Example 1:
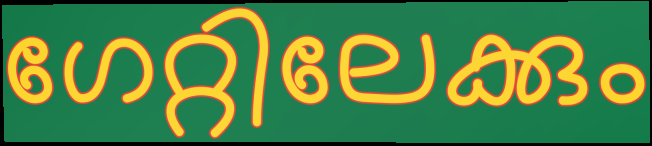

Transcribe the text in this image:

ഗേറ്റിലേക്കും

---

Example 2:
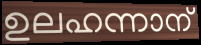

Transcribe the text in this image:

ഉലഹന്നാന്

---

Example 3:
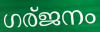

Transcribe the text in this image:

ഗര്ജനം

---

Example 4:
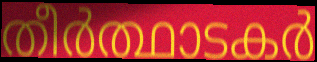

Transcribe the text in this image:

തീർത്ഥാടകർ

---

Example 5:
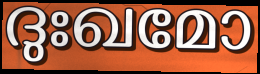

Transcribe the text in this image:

ദുഃഖമോ